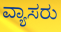
ವ್ಯಾಸರು